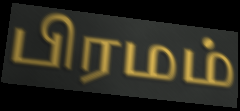
பிரமம்